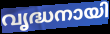
വൃദ്ധനായി